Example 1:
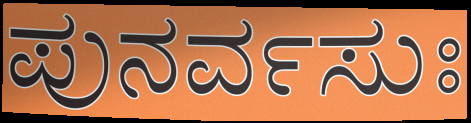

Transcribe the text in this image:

ಪುನರ್ವಸುಃ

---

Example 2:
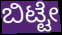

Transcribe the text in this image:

ಬಿಟ್ಟೇ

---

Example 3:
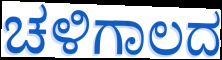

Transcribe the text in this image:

ಚಳಿಗಾಲದ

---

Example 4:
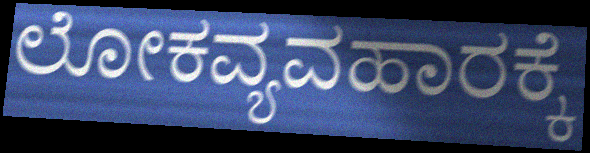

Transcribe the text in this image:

ಲೋಕವ್ಯವಹಾರಕ್ಕೆ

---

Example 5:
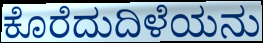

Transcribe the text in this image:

ಕೊರೆದುದಿಳೆಯನು